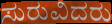
ಸುರುವಿದರು